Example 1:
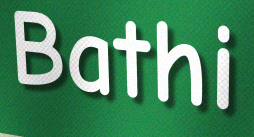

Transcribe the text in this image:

Bathi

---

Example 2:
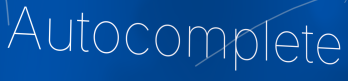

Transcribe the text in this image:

Autocomplete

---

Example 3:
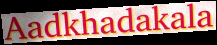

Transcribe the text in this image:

Aadkhadakala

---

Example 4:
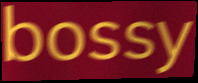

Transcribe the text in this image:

bossy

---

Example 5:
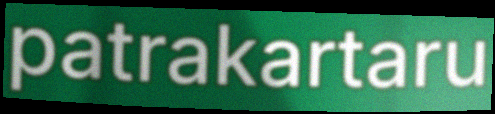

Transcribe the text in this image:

patrakartaru